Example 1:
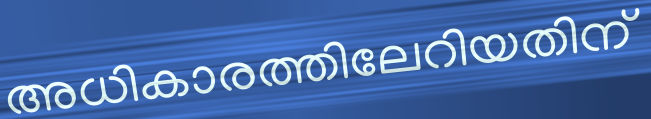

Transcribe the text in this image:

അധികാരത്തിലേറിയതിന്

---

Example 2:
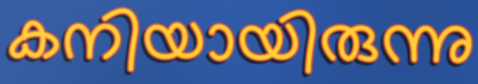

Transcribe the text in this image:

കനിയായിരുന്നു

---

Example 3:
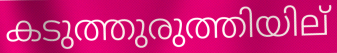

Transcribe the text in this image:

കടുത്തുരുത്തിയില്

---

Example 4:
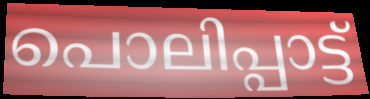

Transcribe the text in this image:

പൊലിപ്പാട്ട്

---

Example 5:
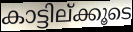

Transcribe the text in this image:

കാട്ടില്ക്കൂടെ